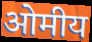
ओमीय